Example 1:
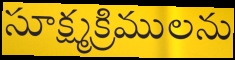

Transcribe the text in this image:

సూక్ష్మక్రిములను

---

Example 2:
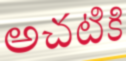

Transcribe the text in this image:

అచటికి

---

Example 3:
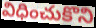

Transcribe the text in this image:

విధించుకొని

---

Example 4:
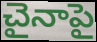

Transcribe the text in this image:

చైనాపై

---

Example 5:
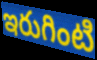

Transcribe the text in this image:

ఇరుగింటి